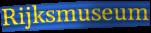
Rijksmuseum